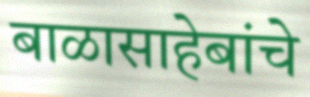
बाळासाहेबांचे